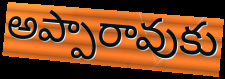
అప్పారావుకు